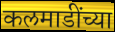
कलमाडींच्या